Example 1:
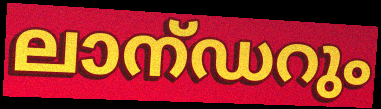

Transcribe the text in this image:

ലാന്ഡറും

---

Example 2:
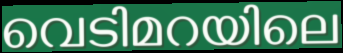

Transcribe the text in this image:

വെടിമറയിലെ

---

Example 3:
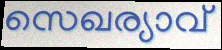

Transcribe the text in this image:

സെഖര്യാവ്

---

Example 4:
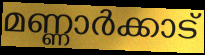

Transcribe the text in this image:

മണ്ണാർക്കാട്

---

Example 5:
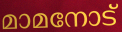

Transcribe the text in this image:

മാമനോട്